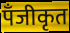
पँजीकृत